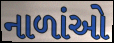
નાળાંઓ